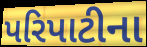
પરિપાટીના